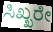
ಸಿಖ್ಖರೇ